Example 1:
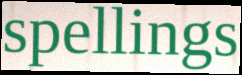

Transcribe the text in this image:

spellings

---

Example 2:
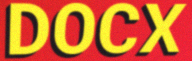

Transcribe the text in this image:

DOCX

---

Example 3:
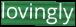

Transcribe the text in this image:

lovingly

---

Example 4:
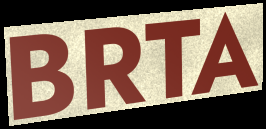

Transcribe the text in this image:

BRTA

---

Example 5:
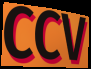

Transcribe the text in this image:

CCV